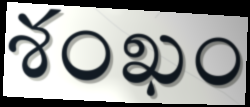
శంఖం